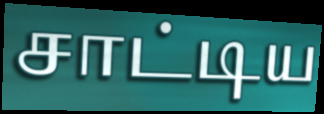
சாட்டிய